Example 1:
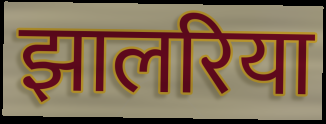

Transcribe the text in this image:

झालरिया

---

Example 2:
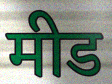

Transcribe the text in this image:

मीड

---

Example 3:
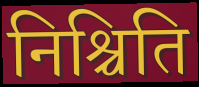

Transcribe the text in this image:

निश्चिति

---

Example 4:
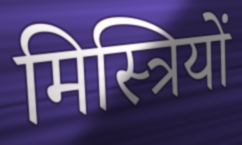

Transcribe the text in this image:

मिस्त्रियों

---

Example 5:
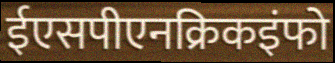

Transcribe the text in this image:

ईएसपीएनक्रिकइंफो